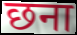
छना